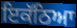
ਇਕੱਠਿਆ